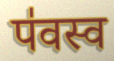
प॑वस्व